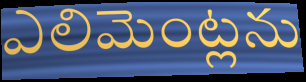
ఎలిమెంట్లను